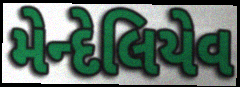
મેન્દેલિયેવ